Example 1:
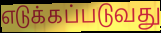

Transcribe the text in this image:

எடுக்கப்படுவது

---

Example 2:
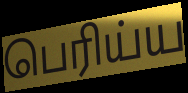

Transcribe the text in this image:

பெரிய்ய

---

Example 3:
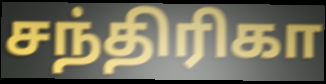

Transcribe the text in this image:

சந்திரிகா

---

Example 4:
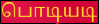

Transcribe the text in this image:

பொடியடி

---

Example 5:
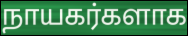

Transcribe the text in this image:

நாயகர்களாக